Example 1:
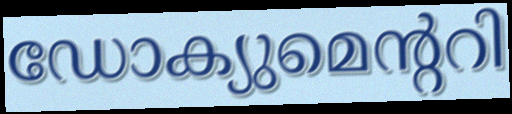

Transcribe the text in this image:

ഡോക്യുമെന്ററി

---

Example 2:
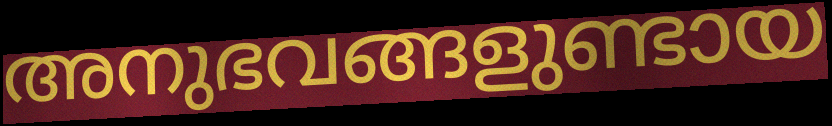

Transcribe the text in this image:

അനുഭവങ്ങളുണ്ടായ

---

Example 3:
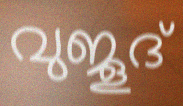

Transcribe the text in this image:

വുജൂദ്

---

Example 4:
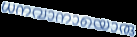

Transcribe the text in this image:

ധനവാനായൊരു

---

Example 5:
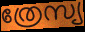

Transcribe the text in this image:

ത്രേസ്യ